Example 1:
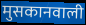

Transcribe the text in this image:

मुसकानवाली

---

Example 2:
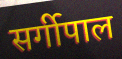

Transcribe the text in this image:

सर्गीपाल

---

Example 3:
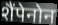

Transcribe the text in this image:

शैंपेनोन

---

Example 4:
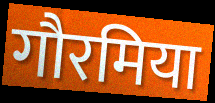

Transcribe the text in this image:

गौरमिया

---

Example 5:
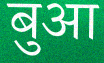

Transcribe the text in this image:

बुआ